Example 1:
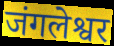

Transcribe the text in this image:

जंगलेश्वर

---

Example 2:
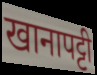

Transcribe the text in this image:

खानापट्टी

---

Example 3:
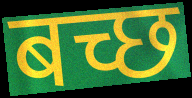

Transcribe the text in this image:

बच्छ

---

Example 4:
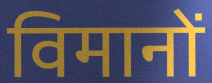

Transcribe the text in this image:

विमानों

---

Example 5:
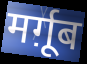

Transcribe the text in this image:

मर्ग़ूब